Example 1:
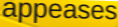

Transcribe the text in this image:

appeases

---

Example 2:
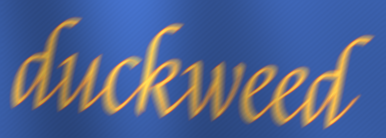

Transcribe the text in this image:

duckweed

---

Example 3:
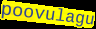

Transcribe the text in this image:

poovulagu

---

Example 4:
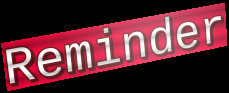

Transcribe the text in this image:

Reminder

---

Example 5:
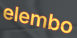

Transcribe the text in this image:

elembo